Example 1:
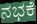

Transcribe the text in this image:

ನಭಕೆ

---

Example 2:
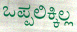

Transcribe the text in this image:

ಒಪ್ಪಲಿಕ್ಕಿಲ್ಲ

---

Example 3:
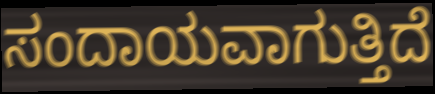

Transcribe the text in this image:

ಸಂದಾಯವಾಗುತ್ತಿದೆ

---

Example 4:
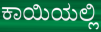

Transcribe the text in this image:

ಕಾಯಿಯಲ್ಲಿ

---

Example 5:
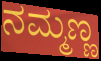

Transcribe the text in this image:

ನಮ್ಮಣ್ಣ